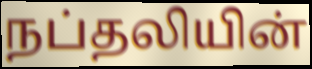
நப்தலியின்